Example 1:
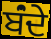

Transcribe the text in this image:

ਬਂੰਦੇ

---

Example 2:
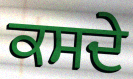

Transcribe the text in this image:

ਕਸਦੇ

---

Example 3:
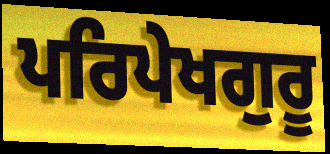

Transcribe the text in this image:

ਪਰਿਪੇਖਗੁਰੂ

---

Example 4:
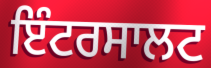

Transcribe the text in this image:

ਇੰਟਰਸਾਲਟ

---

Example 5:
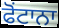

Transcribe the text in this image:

ਫੋਂਟਾਨਾ